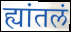
ह्यांतलं